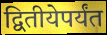
द्वितीयेपर्यंत